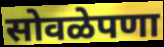
सोवळेपणा